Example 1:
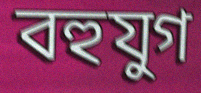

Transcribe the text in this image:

বহুযুগ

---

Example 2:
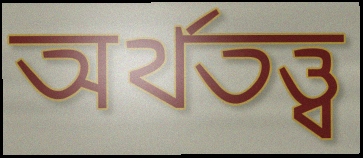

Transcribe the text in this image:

অৰ্থতত্ত্ব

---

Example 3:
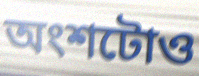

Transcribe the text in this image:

অংশটোও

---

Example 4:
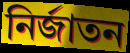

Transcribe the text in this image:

নিৰ্জাতন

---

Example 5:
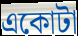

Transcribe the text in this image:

একোটা